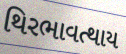
થિરભાવત્થાય